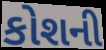
કોશની